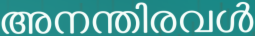
അനന്തിരവൾ